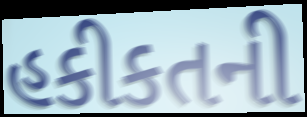
હકીકતની